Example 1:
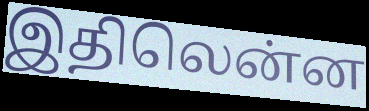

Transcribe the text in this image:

இதிலென்ன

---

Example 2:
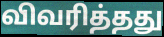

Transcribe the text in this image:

விவரித்தது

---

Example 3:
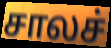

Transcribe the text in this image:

சாலச்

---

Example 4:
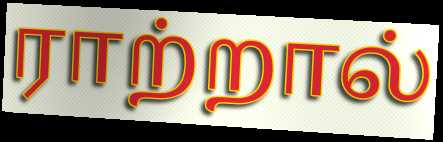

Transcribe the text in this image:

ராற்றால்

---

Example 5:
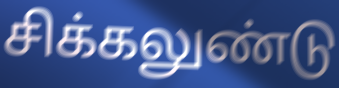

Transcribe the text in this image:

சிக்கலுண்டு